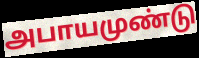
அபாயமுண்டு